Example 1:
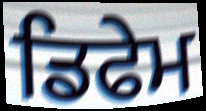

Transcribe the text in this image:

ਡਿਫੇਮ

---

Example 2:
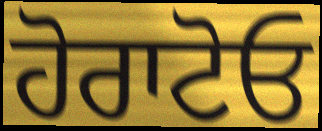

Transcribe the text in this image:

ਹੋਰਾਟੋਓ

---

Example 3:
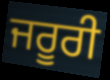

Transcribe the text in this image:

ਜਰੂਰੀ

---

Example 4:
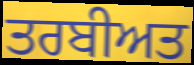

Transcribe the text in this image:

ਤਰਬੀਅਤ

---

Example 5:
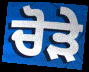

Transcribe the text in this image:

ਚੋੜੇ